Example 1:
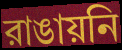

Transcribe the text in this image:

রাঙায়নি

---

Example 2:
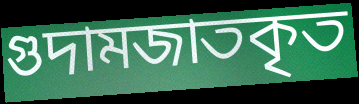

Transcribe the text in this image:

গুদামজাতকৃত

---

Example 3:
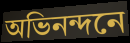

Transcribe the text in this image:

অভিনন্দনে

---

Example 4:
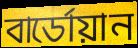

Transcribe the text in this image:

বার্ডোয়ান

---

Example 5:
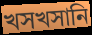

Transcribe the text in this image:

খসখসানি